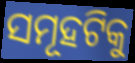
ସମୂହଟିକୁ